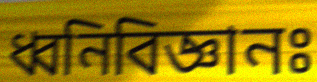
ধ্বনিবিজ্ঞানঃ